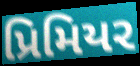
પ્રિમિયર